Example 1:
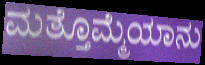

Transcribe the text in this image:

ಮತ್ತೊಮ್ಮೆಯಾನು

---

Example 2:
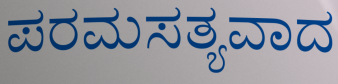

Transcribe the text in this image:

ಪರಮಸತ್ಯವಾದ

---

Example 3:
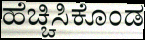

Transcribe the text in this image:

ಹೆಚ್ಚಿಸಿಕೊಂಡ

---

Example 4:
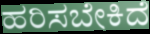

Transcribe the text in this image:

ಹರಿಸಬೇಕಿದೆ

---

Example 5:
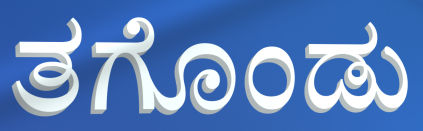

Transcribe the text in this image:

ತಗೊಂಡು